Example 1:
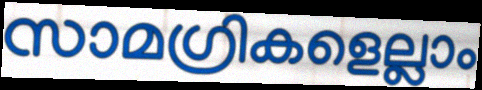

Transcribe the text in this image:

സാമഗ്രികളെല്ലാം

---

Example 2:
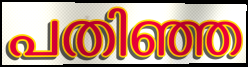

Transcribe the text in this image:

പതിഞ്ഞ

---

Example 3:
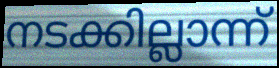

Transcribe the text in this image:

നടക്കില്ലാന്ന്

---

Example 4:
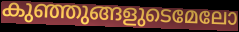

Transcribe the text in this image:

കുഞ്ഞുങ്ങളുടെമേലോ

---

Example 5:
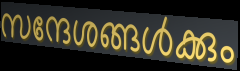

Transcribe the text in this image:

സന്ദേശങ്ങൾക്കും